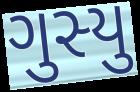
ગુસ્યુ